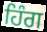
ਹਿੰਗ